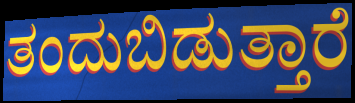
ತಂದುಬಿಡುತ್ತಾರೆ